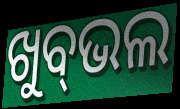
ଖୁବ୍‌ଭଲ